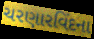
ચરણારવિંદના